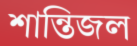
শান্তিজল